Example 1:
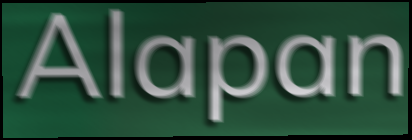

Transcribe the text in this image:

Alapan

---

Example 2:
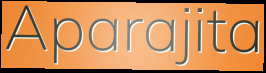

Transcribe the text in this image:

Aparajita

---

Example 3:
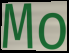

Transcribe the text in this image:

Mo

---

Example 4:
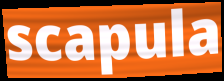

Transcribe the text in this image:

scapula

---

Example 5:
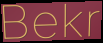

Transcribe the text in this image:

Bekr